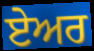
ਏਅਰ